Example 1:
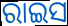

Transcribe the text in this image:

ରାଇସ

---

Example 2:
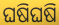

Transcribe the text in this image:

ଘଷିଘଷି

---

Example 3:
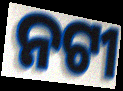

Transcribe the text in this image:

ନଟୀ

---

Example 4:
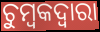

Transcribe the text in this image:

ଚୁମ୍ବକଦ୍ବାରା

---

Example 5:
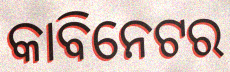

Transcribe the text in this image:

କାବିନେଟର